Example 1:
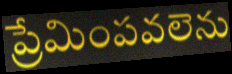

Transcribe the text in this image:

ప్రేమింపవలెను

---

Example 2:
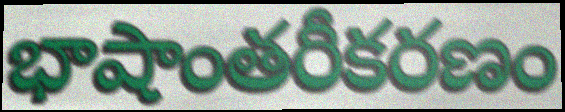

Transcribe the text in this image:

భాషాంతరీకరణం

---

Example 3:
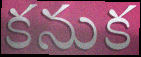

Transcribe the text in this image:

కనుక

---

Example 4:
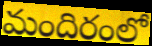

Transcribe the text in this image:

మందిరంలో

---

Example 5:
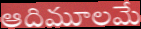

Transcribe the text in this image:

ఆదిమూలమే